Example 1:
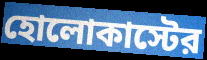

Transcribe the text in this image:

হোলোকাস্টের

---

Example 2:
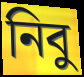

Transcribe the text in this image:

নিবু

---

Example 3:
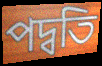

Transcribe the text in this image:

পদ্বতি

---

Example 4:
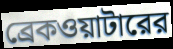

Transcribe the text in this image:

ব্রেকওয়াটারের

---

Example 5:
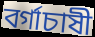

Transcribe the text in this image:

বর্গাচাষী